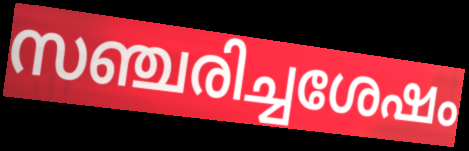
സഞ്ചരിച്ചശേഷം